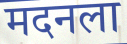
मदनला